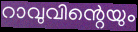
റാവുവിന്റെയും